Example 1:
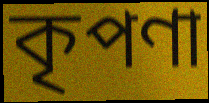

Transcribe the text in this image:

কৃপণা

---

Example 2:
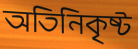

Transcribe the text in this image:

অতিনিকৃষ্ট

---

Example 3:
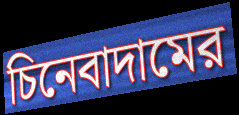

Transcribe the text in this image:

চিনেবাদামের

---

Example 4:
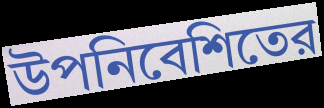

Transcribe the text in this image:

উপনিবেশিতের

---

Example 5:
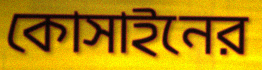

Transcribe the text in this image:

কোসাইনের